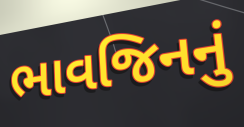
ભાવજિનનું